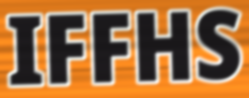
IFFHS